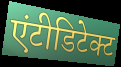
एंटीडिटेक्ट